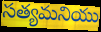
సత్యమనియు